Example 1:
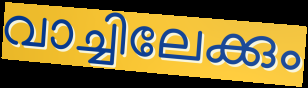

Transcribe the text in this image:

വാച്ചിലേക്കും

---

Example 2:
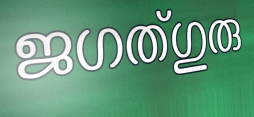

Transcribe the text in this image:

ജഗത്ഗുരു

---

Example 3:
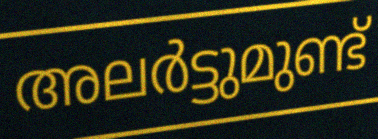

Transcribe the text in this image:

അലർട്ടുമുണ്ട്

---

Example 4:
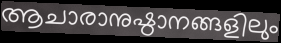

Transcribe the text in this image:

ആചാരാനുഷ്ഠാനങ്ങളിലും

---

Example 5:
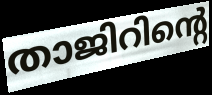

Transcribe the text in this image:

താജിറിന്റെ